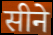
सीने